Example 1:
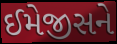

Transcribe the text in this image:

ઈમેજીસને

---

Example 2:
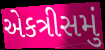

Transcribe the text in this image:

એકત્રીસમું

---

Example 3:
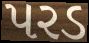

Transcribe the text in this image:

પરડ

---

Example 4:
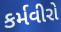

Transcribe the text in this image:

કર્મવીરો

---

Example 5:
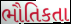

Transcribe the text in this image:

ભૌતિકતા